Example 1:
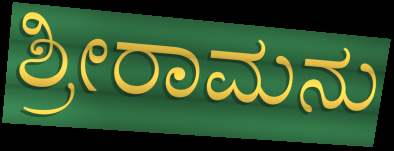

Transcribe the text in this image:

ಶ್ರೀರಾಮನು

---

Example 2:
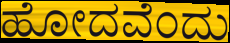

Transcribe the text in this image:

ಹೋದವೆಂದು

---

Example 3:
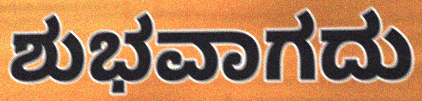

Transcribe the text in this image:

ಶುಭವಾಗದು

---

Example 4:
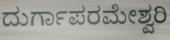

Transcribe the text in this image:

ದುರ್ಗಾಪರಮೇಶ್ವರಿ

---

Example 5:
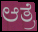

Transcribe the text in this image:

ಆತ್ರೆ